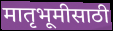
मातृभूमीसाठी